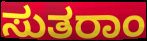
ಸುತರಾಂ